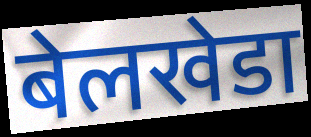
बेलखेडा